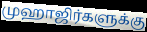
முஹாஜிர்களுக்கு